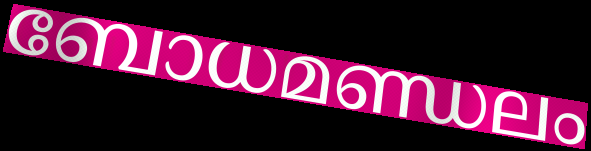
ബോധമണ്ഡലം